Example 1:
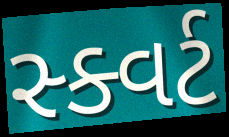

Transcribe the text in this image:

સ્ક્વર્ટ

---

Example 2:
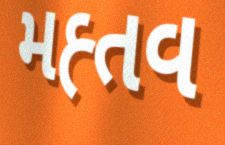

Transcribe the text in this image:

મહ્તવ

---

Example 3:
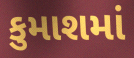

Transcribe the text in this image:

કુમાશમાં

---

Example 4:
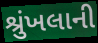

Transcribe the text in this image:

શ્રુંખલાની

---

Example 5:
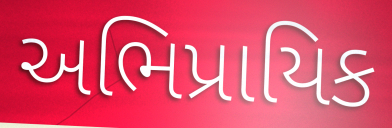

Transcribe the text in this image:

અભિપ્રાયિક